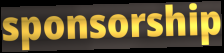
sponsorship